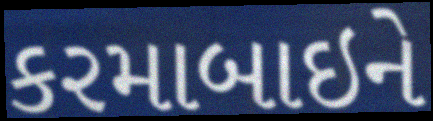
કરમાબાઇને